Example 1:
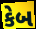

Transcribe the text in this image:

કેબ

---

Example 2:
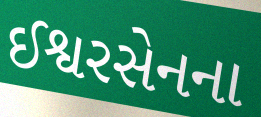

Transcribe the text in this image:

ઈશ્વરસેનના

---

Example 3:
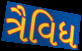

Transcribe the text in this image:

ત્રૈવિધ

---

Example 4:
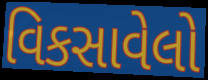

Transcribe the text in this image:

વિકસાવેલો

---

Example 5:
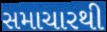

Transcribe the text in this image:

સમાચારથી